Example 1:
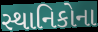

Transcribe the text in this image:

સ્થાનિકોના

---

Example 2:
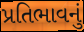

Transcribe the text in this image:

પ્રતિભાવનું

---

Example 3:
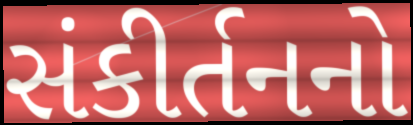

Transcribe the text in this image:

સંકીર્તનનો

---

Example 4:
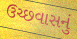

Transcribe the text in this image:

ઉચ્છવાસનું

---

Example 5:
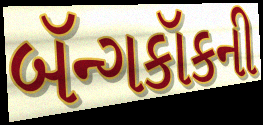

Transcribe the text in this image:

બૅન્ગકૉકની